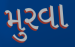
મુરવા